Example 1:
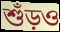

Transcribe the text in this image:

শুঁড়ও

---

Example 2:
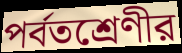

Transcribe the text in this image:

পর্বতশ্রেণীর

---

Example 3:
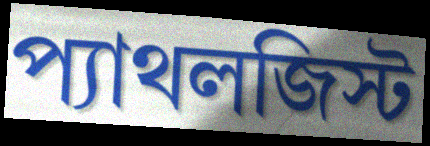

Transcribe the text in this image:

প্যাথলজিস্ট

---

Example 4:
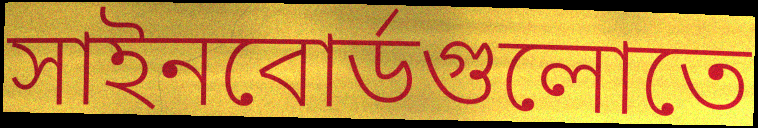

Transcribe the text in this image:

সাইনবোর্ডগুলোতে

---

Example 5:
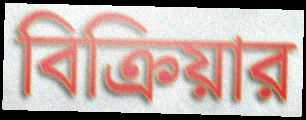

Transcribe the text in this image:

বিক্রিয়ার